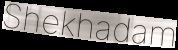
Shekhadam